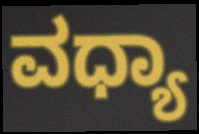
ವಧ್ಯಾ